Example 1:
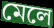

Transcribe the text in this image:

মেলে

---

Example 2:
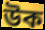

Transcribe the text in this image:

উক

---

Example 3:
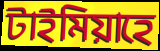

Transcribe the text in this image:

টাইমিয়াহে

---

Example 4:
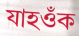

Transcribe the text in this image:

যাহওঁক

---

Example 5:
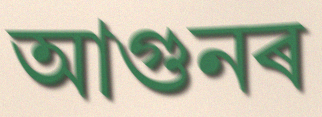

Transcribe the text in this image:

আগুনৰ